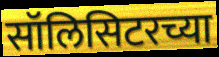
सॉलिसिटरच्या